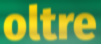
oltre